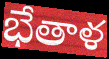
భేతాళ